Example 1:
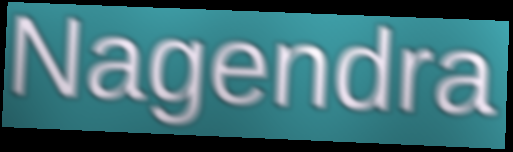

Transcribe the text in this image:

Nagendra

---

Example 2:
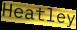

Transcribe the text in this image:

Heatley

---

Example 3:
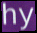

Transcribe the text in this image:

hy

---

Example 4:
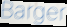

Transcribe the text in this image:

Barger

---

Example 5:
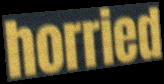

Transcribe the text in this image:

horried